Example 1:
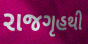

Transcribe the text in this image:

રાજગૃહથી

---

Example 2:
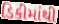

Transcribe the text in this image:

ડિકીમાંથી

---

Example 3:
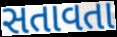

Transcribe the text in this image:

સતાવતા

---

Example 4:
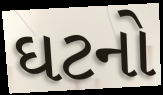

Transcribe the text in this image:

ઘટનો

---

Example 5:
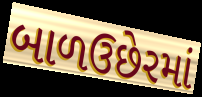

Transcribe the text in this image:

બાળઉછેરમાં